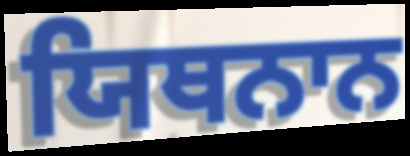
ਯਿਥਨਾਨ